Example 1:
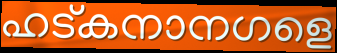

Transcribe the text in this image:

ഹട്കനാനഗളെ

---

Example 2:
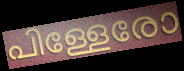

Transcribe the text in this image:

പിള്ളേരോ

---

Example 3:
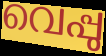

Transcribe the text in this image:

വെപ്പു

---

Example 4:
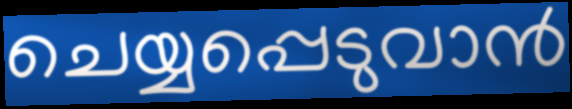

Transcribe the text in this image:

ചെയ്യപ്പെടുവാൻ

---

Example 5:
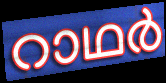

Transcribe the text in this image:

റാഥർ